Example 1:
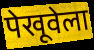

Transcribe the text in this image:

पेखूवेला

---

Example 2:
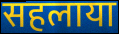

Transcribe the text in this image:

सहलाया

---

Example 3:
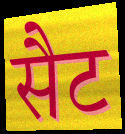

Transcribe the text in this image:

सैट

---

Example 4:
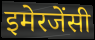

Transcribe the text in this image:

इमेरजेंसी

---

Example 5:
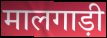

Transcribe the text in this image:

मालगाड़ी